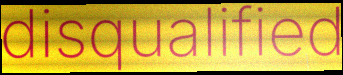
disqualified